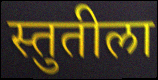
स्तुतीला